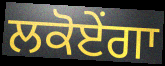
ਲਕੋਏਂਗਾ